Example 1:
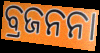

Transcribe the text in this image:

ବ୍ରଜନନା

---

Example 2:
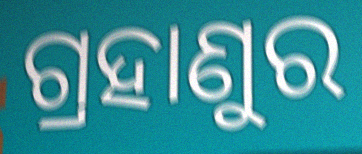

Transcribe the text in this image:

ଗ୍ରହାଣୁର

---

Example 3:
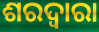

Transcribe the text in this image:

ଶରଦ୍ୱାରା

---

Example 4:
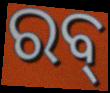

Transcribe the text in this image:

ରବ୍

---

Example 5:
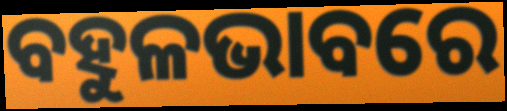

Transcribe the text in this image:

ବହୁଳଭାବରେ